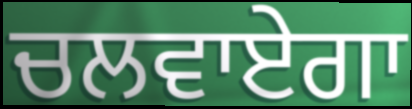
ਚਲਵਾਏਗਾ